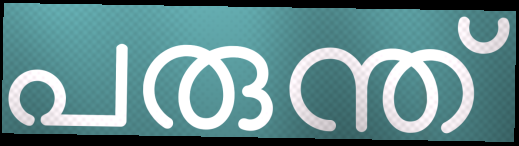
പരുന്ത്